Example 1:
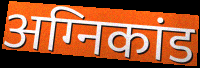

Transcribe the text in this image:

अग्‍निकांड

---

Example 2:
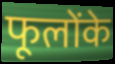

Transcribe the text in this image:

फूलोंके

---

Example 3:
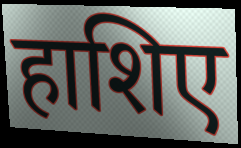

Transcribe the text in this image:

हाशिए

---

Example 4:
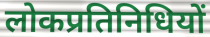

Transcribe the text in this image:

लोकप्रतिनिधियों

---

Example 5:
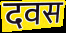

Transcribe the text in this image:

दवस